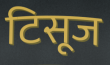
टिसूज